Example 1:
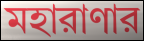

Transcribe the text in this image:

মহারাণার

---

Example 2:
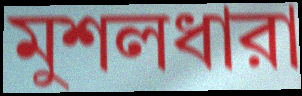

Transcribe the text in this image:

মুশলধারা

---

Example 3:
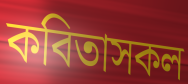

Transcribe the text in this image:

কবিতাসকল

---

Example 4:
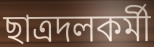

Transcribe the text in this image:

ছাত্রদলকর্মী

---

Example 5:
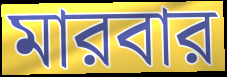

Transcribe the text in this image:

মারবার